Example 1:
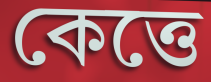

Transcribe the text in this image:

কেত্তে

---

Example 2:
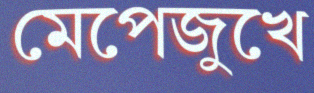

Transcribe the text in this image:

মেপেজুখে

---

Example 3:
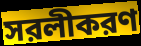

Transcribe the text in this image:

সরলীকরণ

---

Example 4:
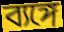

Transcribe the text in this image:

ব্যঙ্গে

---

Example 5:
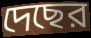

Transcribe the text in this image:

দেছের